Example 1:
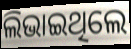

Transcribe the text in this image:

ଲିଭାଇଥିଲେ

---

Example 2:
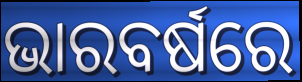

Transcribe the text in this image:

ଭାରବର୍ଷରେ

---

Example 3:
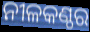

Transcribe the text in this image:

ନୀଳକଣ୍ଠର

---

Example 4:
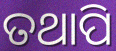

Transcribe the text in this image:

ତଥାପି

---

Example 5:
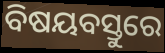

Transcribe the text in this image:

ବିଷୟବସ୍ତୁରେ